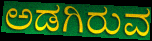
ಅಡಗಿರುವ